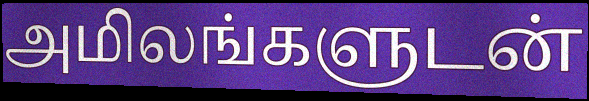
அமிலங்களுடன்